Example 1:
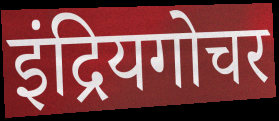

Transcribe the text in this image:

इंद्रियगोचर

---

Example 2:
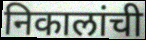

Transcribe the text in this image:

निकालांची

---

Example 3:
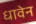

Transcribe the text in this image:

धावेन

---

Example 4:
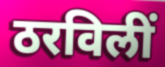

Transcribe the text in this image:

ठरविलीं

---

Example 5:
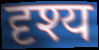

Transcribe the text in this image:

दृश्‍य